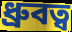
ধ্রুবত্ব